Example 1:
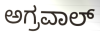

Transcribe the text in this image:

ಅಗ್ರವಾಲ್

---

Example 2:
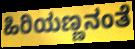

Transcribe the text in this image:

ಹಿರಿಯಣ್ಣನಂತೆ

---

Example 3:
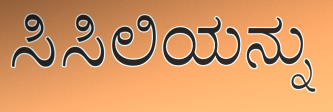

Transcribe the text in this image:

ಸಿಸಿಲಿಯನ್ನು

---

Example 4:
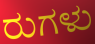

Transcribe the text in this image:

ರುಗಳು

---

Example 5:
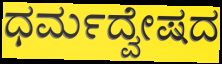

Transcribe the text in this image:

ಧರ್ಮದ್ವೇಷದ